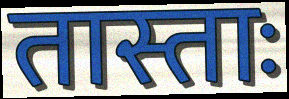
तास्ताः